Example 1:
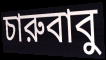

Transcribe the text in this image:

চারুবাবু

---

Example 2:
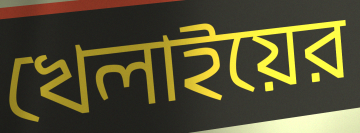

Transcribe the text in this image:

খেলাইয়ের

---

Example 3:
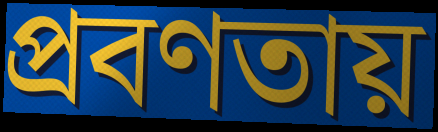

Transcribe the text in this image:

প্রবণতায়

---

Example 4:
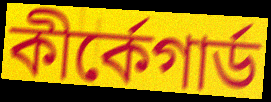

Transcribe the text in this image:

কীর্কেগার্ড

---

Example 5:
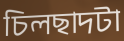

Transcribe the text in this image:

চিলছাদটা